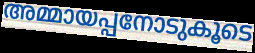
അമ്മായപ്പനോടുകൂടെ